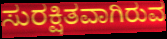
ಸುರಕ್ಷಿತವಾಗಿರುವ